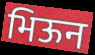
भिऊन